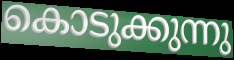
കൊടുക്കുന്നു